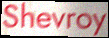
Shevroy